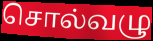
சொல்வழு